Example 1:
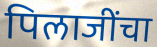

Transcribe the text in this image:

पिलाजींचा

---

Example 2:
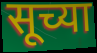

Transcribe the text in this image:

सूच्या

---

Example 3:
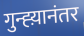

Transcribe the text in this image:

गुन्ह्य़ानंतर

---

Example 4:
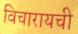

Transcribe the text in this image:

विचारायची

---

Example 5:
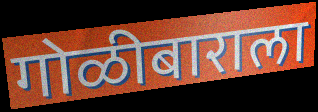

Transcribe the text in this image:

गोळीबाराला